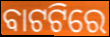
ବାଟଟିରେ